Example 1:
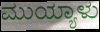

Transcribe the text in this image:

ಮುಯ್ಯಾಳು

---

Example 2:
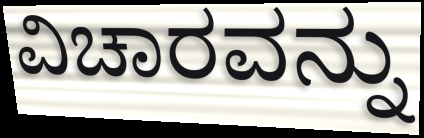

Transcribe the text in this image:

ವಿಚಾರವನ್ನು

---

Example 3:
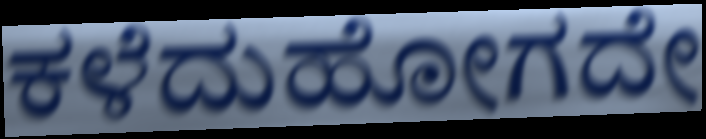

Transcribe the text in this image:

ಕಳೆದುಹೋಗದೇ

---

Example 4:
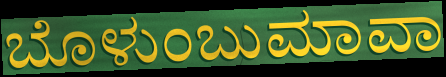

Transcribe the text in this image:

ಬೊಳುಂಬುಮಾವಾ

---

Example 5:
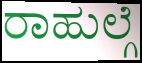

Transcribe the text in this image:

ರಾಹುಲ್ಗೆ